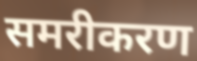
समरीकरण